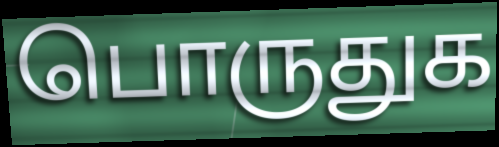
பொருதுக